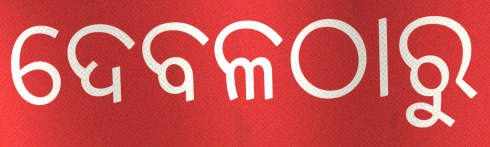
ଦେବଳଠାରୁ